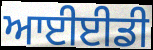
ਆਈਈਡੀ